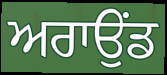
ਅਰਾਉਂਡ